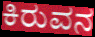
ಕಿರುವನ